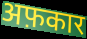
अफ़कार